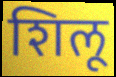
शिलू